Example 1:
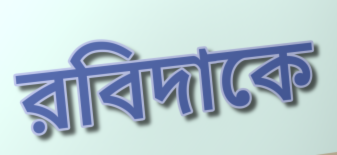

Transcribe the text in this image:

রবিদাকে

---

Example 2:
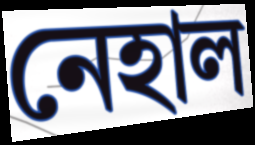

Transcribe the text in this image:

নেহাল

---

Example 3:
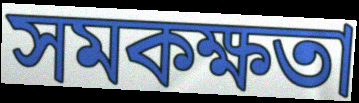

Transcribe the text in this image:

সমকক্ষতা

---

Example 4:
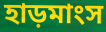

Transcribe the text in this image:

হাড়মাংস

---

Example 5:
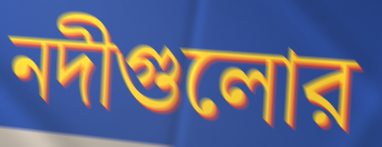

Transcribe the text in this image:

নদীগুলোর